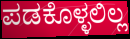
ಪಡಕೊಳ್ಳಲಿಲ್ಲ